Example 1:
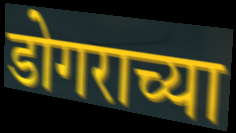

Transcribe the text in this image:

डोगराच्या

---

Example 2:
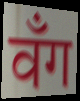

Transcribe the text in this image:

वँग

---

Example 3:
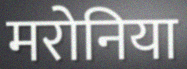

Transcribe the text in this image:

मरोनिया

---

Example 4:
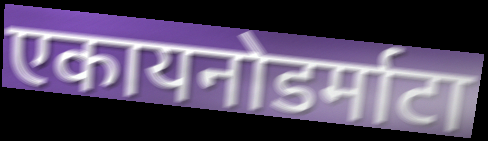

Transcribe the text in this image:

एकायनोडर्माटा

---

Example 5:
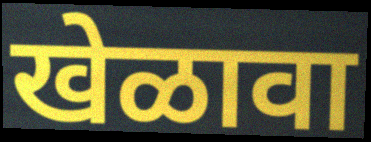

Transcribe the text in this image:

खेळावा